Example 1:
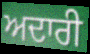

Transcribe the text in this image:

ਅਦਾਰੀ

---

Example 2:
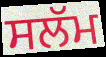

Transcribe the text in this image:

ਸਲੱਮ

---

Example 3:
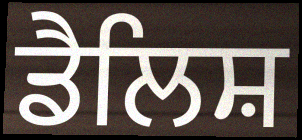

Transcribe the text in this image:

ਡੈਲਿਸ਼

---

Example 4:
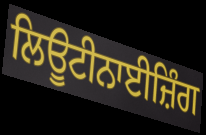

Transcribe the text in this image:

ਲਿਊਟੀਨਾਈਜ਼ਿੰਗ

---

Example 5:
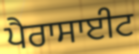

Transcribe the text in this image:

ਪੈਰਾਸਾਈਟ